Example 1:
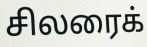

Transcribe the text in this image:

சிலரைக்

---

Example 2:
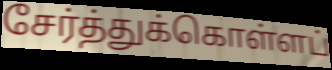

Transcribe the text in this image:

சேர்த்துக்கொள்ளப்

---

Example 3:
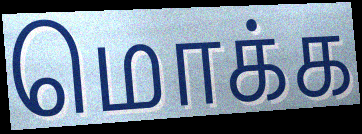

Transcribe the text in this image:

மொக்க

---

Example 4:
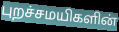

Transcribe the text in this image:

புறச்சமயிகளின்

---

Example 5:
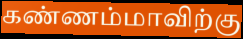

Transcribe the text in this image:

கண்ணம்மாவிற்கு